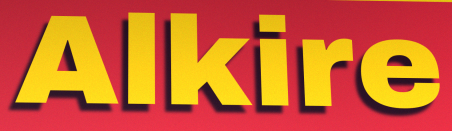
Alkire